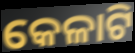
କେଳାଟି